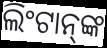
ଲିଂଟାନ୍‍ଙ୍କ